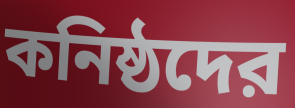
কনিষ্ঠদের